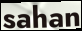
sahan